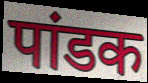
पांडक